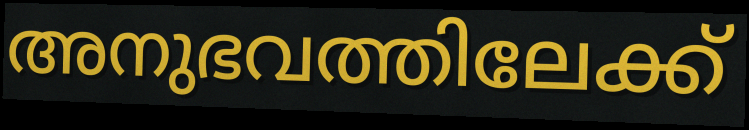
അനുഭവത്തിലേക്ക്